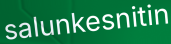
salunkesnitin